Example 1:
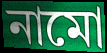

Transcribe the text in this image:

নামো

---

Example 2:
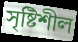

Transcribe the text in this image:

সৃষ্টিশীল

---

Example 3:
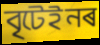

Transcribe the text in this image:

বৃটেইনৰ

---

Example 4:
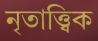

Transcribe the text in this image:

নৃতাত্ত্বিক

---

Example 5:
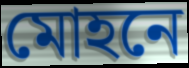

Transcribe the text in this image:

মোহনে